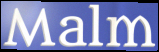
Malm